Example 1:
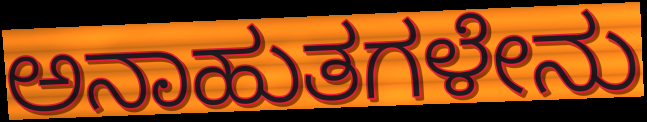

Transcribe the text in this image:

ಅನಾಹುತಗಳೇನು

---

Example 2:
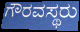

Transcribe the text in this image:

ಗೌರವಸ್ಥರು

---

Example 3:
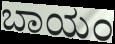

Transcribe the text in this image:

ಬಾಯಂ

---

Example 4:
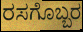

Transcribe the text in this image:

ರಸಗೊಬ್ಬರ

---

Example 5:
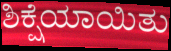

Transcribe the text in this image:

ಶಿಕ್ಷೆಯಾಯಿತು